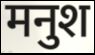
मनुश